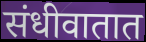
संधीवातात